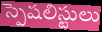
స్పెషలిస్టులు